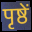
पृष्ठें